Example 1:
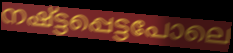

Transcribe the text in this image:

നഷ്ട്ടപ്പെട്ടപോലെ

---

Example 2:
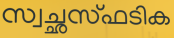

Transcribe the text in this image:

സ്വച്ഛസ്ഫടിക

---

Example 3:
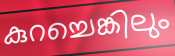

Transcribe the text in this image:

കുറച്ചെങ്കിലും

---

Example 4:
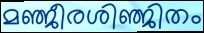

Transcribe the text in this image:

മഞ്ജീരശിഞ്ജിതം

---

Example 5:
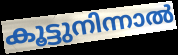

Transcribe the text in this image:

കൂട്ടുനിന്നാൽ